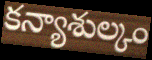
కన్యాశుల్కం